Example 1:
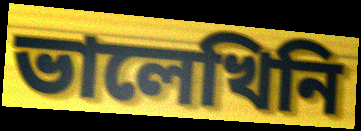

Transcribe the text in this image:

ভালেখিনি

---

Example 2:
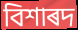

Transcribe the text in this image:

বিশাৰদ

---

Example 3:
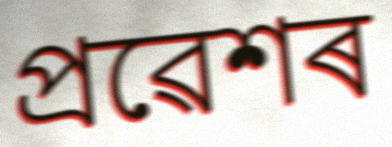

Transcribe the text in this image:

প্ৰৱেশৰ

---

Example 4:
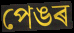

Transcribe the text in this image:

পেঙৰ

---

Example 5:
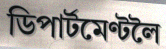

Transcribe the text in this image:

ডিপাৰ্টমেণ্টলৈ